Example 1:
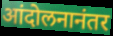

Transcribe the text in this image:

आंदोलनानंतर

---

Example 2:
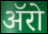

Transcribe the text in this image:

ॲरो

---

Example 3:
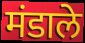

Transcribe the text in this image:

मंडाले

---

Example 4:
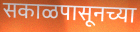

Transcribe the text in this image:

सकाळपासूनच्या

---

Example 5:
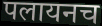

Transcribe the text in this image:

पलायनच